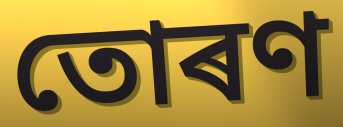
তোৰণ